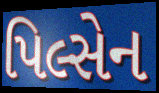
પિલ્સેન